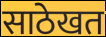
साठेखत